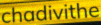
chadivithe